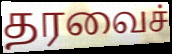
தரவைச்